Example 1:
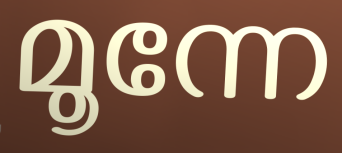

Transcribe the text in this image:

മൂന്നേ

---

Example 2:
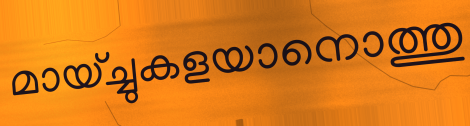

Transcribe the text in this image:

മായ്ച്ചുകളയാനൊത്തു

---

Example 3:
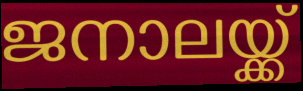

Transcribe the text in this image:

ജനാലയ്ക്ക്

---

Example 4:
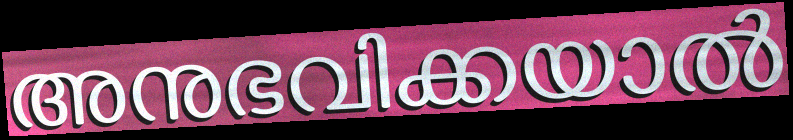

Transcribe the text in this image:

അനുഭവിക്കയാൽ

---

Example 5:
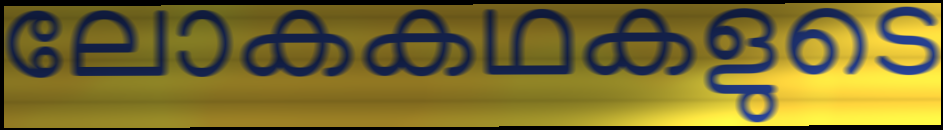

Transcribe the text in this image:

ലോകകഥകളുടെ